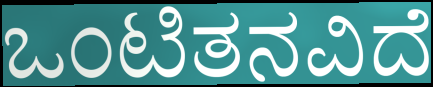
ಒಂಟಿತನವಿದೆ